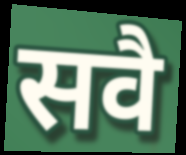
सवै